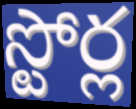
స్టోర్ల